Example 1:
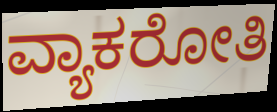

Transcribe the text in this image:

ವ್ಯಾಕರೋತಿ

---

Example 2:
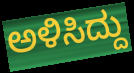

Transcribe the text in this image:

ಅಳಿಸಿದ್ದು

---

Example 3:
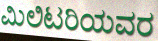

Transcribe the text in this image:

ಮಿಲಿಟರಿಯವರ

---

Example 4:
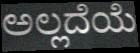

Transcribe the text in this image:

ಅಲ್ಲದೆಯೆ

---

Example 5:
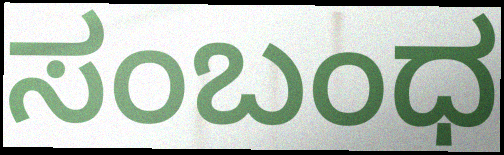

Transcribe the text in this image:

ಸಂಬಂಧ